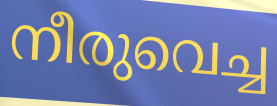
നീരുവെച്ച